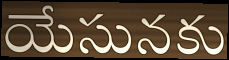
యేసునకు